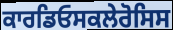
ਕਾਰਡਿਓਸਕਲੇਰੋਸਿਸ